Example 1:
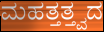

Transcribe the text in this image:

ಮಹತ್ತತ್ತ್ವದ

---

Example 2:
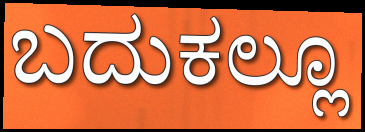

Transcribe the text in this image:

ಬದುಕಲ್ಲೂ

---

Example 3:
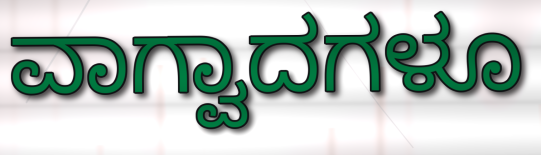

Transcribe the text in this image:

ವಾಗ್ವಾದಗಳೂ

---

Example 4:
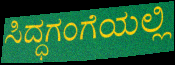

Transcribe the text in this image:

ಸಿದ್ಧಗಂಗೆಯಲ್ಲಿ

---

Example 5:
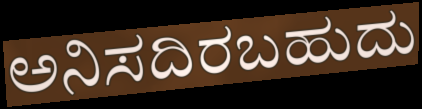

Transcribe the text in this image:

ಅನಿಸದಿರಬಹುದು